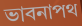
ভাবনাপথ